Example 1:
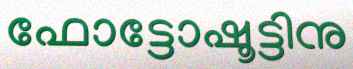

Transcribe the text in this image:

ഫോട്ടോഷൂട്ടിനു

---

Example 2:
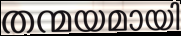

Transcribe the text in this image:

തന്മയമായി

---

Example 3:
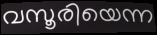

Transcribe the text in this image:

വസൂരിയെന്ന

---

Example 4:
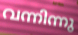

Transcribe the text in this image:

വന്നിന്നു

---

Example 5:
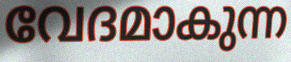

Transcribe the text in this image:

വേദമാകുന്ന